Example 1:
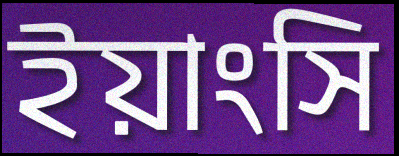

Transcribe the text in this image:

ইয়াংসি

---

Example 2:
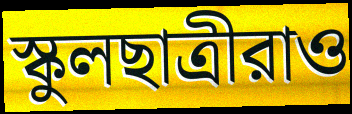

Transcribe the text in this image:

স্কুলছাত্রীরাও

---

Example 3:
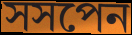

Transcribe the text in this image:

সসপেন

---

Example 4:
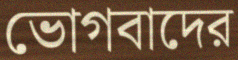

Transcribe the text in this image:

ভোগবাদের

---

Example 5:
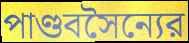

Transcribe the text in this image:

পাণ্ডবসৈন্যের